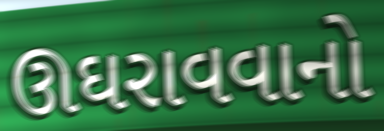
ઊઘરાવવાનો